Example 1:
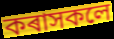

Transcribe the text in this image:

কৰাসকলে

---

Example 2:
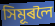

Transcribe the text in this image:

সিমূৰলৈ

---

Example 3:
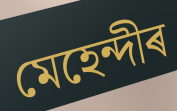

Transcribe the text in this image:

মেহেন্দীৰ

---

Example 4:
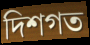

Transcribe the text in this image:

দিশগত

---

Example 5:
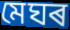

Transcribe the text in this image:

মেঘৰ